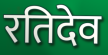
रतिदेव